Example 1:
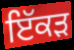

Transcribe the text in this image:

ਇੱਕੜ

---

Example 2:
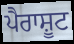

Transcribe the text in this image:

ਪੈਰਾਸ਼ੂਟ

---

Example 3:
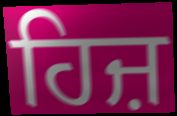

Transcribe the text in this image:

ਹਿਜ਼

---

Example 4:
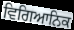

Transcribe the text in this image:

ਵਿਗਿਆਨਿਕ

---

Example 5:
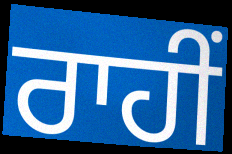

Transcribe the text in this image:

ਰਾਹੀਂ